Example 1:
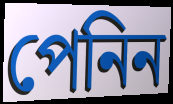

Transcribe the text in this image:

পেনিন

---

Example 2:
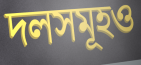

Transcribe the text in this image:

দলসমূহও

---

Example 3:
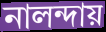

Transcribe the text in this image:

নালন্দায়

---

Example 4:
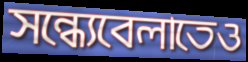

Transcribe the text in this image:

সন্ধ্যেবেলাতেও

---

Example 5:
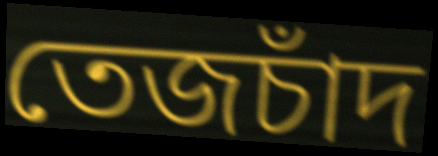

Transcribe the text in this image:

তেজচাঁদ